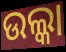
ଉଲ୍କା